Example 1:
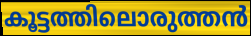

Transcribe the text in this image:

കൂട്ടത്തിലൊരുത്തൻ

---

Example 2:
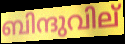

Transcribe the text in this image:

ബിന്ദുവില്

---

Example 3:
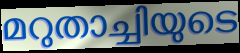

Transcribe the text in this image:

മറുതാച്ചിയുടെ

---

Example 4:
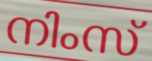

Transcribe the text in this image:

നിംസ്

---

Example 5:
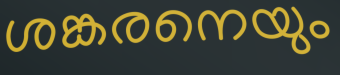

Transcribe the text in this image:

ശങ്കരനെയും